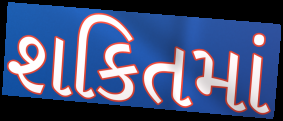
શકિતમાં